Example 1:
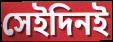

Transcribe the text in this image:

সেইদিনই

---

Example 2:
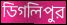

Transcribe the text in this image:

ডিগলিপুর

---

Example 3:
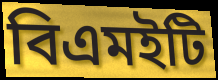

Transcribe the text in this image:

বিএমইটি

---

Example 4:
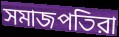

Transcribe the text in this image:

সমাজপতিরা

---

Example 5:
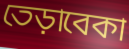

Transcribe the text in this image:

তেড়াবেকা